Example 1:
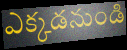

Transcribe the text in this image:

ఎక్కడనుండి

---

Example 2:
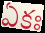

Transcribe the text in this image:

ఏకః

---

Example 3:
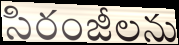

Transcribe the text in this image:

సిరంజీలను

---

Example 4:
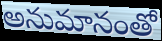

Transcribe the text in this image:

అనుమానంతో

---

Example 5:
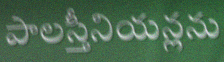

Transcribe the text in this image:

పాలస్తీనియన్లను